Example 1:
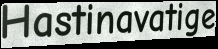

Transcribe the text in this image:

Hastinavatige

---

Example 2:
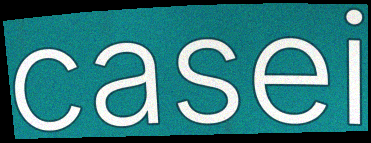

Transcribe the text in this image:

casei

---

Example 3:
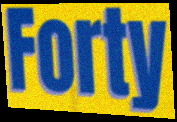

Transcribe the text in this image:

Forty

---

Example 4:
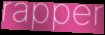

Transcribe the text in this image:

rapper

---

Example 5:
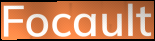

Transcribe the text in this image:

Focault